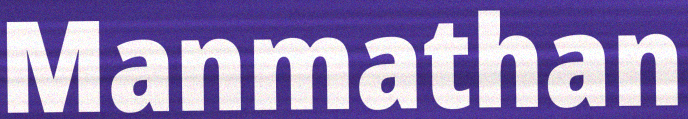
Manmathan